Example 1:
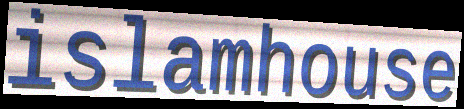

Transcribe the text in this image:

islamhouse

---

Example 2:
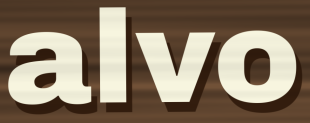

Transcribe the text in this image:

alvo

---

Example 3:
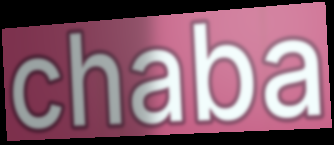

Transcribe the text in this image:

chaba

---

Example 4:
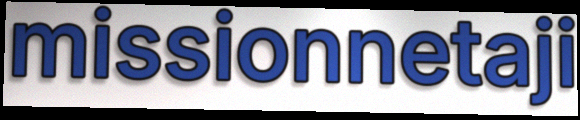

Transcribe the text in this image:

missionnetaji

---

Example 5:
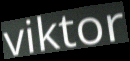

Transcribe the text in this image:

viktor